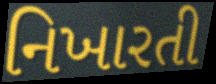
નિખારતી